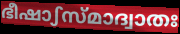
ഭീഷാഽസ്മാദ്വാതഃ